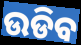
ଉଡିବ